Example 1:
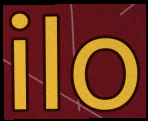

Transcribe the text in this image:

ilo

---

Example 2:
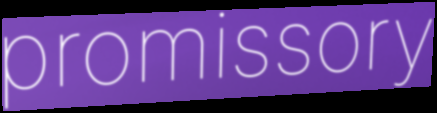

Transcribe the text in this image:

promissory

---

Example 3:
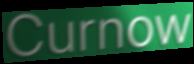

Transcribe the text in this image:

Curnow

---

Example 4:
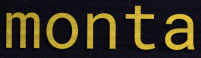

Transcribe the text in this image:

monta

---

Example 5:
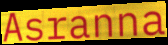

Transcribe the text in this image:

Asranna